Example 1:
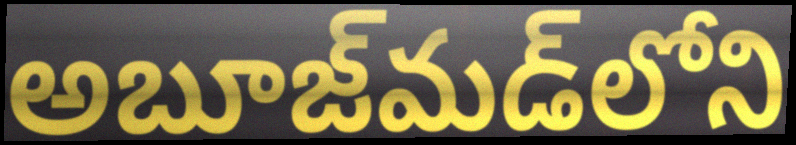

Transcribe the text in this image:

అబూజ్‌మడ్‌లోని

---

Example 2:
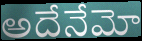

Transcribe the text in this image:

అదేనేమో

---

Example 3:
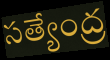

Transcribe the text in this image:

సత్యేంద్ర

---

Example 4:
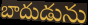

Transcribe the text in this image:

బాదుడును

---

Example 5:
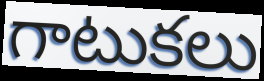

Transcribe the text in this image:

గాటుకలు